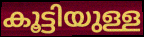
കൂട്ടിയുള്ള